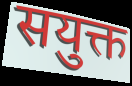
सयुक्त